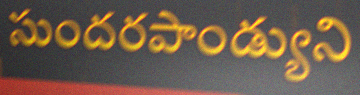
సుందరపాండ్యుని